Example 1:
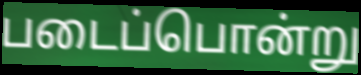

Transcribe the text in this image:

படைப்பொன்று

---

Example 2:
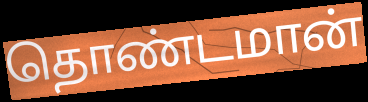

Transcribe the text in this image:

தொண்டமான்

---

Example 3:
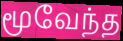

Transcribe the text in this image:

மூவேந்த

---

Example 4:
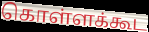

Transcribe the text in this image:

கொள்ளக்கூட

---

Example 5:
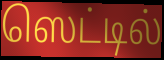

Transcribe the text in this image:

ஸெட்டில்